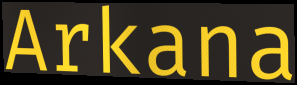
Arkana